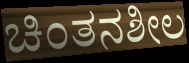
ಚಿಂತನಶೀಲ